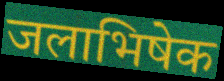
जलाभिषेक